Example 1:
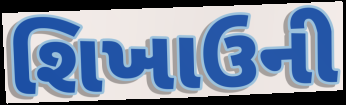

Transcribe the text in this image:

શિખાઉની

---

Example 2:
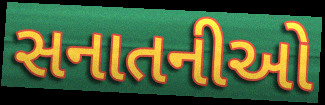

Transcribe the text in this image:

સનાતનીઓ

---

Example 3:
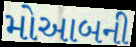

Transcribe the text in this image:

મોઆબની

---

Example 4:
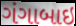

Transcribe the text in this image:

ગંગાબાઇ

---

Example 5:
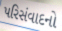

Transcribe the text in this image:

પરિસંવાદનો